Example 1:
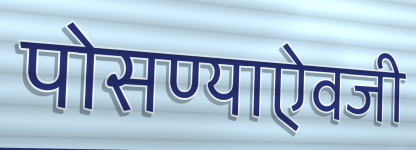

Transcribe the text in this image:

पोसण्याऐवजी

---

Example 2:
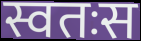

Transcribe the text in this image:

स्वतःस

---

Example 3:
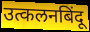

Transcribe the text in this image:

उत्कलनबिंदू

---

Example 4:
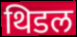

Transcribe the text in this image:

थिडल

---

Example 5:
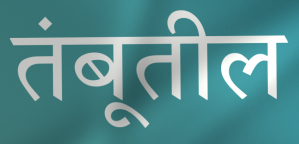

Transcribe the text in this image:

तंबूतील